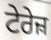
ਟੇਰੇਜ਼